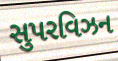
સુપરવિઝન